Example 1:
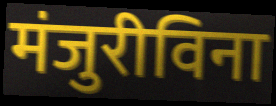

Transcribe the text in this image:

मंजुरीविना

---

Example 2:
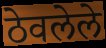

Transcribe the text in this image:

ठेवलेले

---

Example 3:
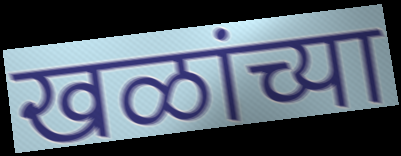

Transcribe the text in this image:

खळांच्या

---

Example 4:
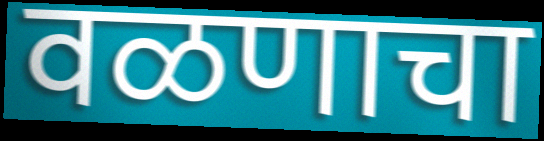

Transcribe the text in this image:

वळणाचा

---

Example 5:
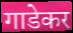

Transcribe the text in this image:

गाडेकर